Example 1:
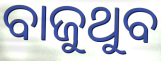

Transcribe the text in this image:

ବାଜୁଥୁବ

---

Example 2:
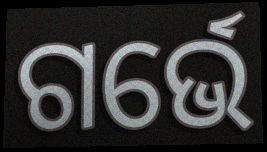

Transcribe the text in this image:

ଗର୍ଭେ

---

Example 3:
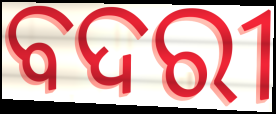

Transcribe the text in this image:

ବଦରୀ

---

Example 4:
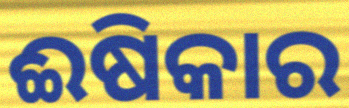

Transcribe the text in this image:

ଈଷିକାର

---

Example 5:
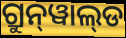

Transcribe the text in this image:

ଗ୍ରୁନ୍‌ୱାଲ୍‌ଡ